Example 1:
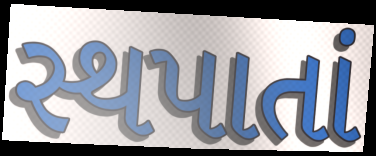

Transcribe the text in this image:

સ્થપાતાં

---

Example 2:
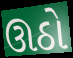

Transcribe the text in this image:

ઊઠો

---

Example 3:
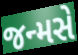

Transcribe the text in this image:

જન્મસે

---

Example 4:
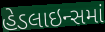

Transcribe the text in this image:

હેડલાઇન્સમાં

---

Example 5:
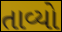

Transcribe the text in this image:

તાવ્યો